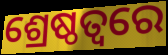
ଶ୍ରେଷ୍ଠତ୍ୱରେ